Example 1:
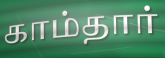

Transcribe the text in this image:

காம்தார்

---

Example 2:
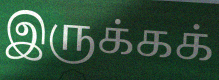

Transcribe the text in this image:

இருக்கக்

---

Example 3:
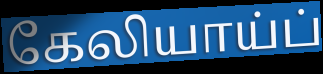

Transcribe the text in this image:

கேலியாய்ப்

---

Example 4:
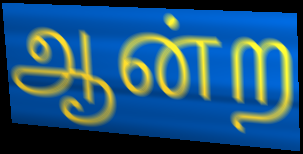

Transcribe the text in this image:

ஆன்ற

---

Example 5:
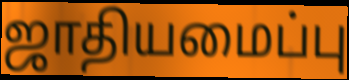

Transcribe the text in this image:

ஜாதியமைப்பு